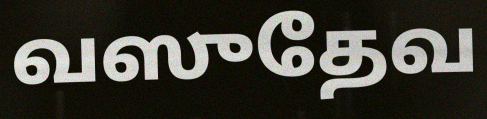
வஸுதேவ